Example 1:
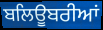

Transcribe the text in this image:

ਬਲਿਊਬਰੀਆਂ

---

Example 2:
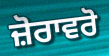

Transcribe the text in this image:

ਜ਼ੋਰਾਵਰੋ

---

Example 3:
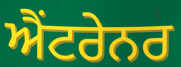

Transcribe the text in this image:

ਐਂਟਰੇਨਰ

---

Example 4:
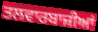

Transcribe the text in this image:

ਤਲਵਾਰਬਾਜ਼ੀਆਂ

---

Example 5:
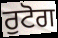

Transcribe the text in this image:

ਰੁਟੋਗ